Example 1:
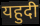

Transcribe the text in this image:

यहुदी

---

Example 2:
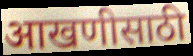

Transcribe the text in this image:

आखणीसाठी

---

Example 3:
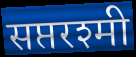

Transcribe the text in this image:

सप्तरश्मी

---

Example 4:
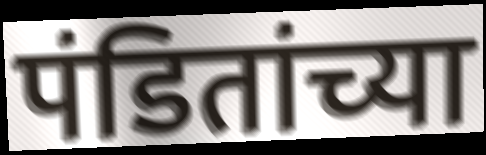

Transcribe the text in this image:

पंडितांच्या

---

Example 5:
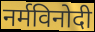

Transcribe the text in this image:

नर्मविनोदी